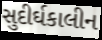
સુદીર્ઘકાલીન